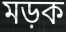
মড়ক